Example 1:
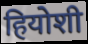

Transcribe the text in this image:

हियोशी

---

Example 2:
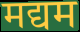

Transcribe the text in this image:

मद्यम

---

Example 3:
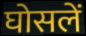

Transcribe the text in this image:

घोसलें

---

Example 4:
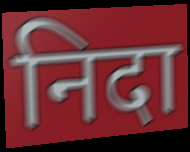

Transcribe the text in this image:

निदा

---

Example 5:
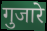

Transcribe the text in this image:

गुजारे